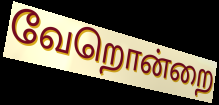
வேறொன்றை